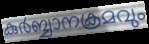
കുർബ്ബാനക്രമവും